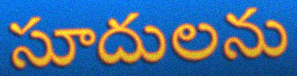
సూదులను